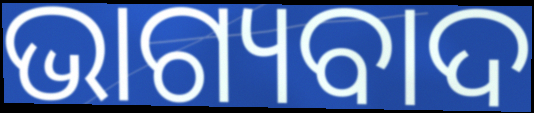
ଭାଗ୍ୟବାଦ